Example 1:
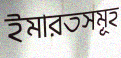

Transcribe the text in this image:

ইমারতসমূহ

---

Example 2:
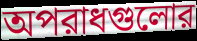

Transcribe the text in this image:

অপরাধগুলোর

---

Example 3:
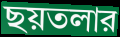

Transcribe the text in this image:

ছয়তলার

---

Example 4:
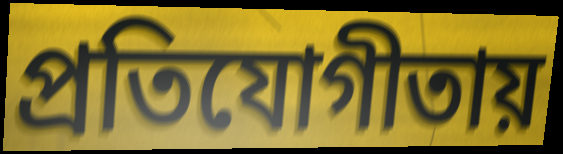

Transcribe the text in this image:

প্রতিযোগীতায়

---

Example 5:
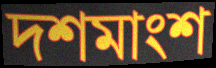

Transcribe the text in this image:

দশমাংশ